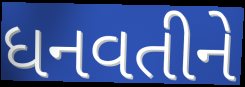
ધનવતીને